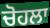
ਚੋਹਲਾ